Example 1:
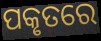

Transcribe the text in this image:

ପକୃତରେ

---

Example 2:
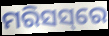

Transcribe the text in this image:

ମରିସସ୍‌ରେ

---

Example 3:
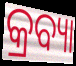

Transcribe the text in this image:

କ୍ରବ୍ୟା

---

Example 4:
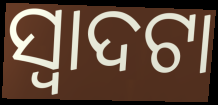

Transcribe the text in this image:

ସ୍ଵାଦଟା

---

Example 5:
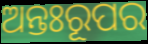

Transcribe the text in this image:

ଅନ୍ତଃରୂପର